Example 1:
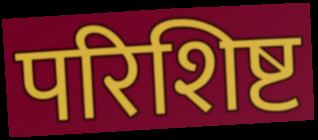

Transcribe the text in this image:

परिशिष्ट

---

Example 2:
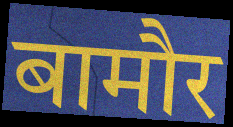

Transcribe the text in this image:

बामौर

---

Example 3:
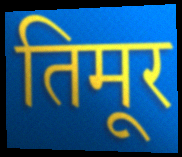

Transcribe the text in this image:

तिमूर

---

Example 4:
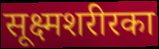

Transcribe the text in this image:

सूक्ष्मशरीरका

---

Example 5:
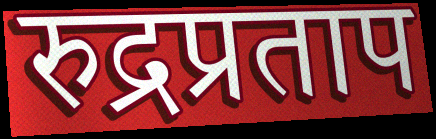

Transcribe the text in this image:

रुद्रप्रताप